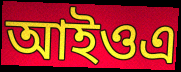
আইওএ